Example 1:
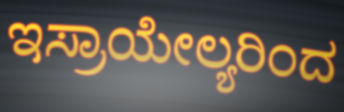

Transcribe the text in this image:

ಇಸ್ರಾಯೇಲ್ಯರಿಂದ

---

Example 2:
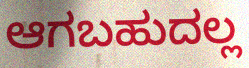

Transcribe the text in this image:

ಆಗಬಹುದಲ್ಲ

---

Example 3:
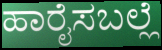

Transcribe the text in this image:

ಹಾರೈಸಬಲ್ಲೆ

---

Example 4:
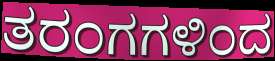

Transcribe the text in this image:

ತರಂಗಗಳಿಂದ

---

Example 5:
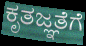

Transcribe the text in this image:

ಕೃತಜ್ಞತೆಗೆ